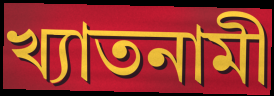
খ্যাতনামী